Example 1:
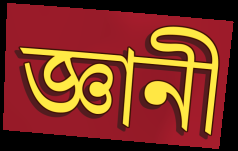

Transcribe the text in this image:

জ্ঞানী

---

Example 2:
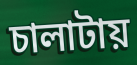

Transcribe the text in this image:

চালাটায়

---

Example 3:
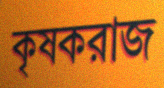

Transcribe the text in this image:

কৃষকরাজ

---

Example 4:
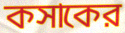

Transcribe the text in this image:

কসাকের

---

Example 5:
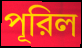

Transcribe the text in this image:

পূরিল